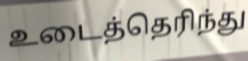
உடைத்தெரிந்து